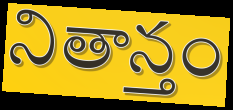
నితాన్తం